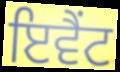
ਇਵੈਂਟ